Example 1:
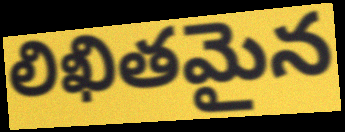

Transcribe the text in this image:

లిఖితమైన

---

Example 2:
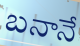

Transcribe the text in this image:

బనానే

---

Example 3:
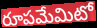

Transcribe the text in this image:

రూపమేమిటో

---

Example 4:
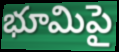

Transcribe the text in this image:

భూమిపై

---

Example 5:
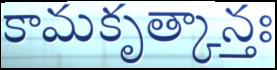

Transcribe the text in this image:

కామకృత్కాన్తః